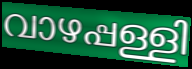
വാഴപ്പള്ളി